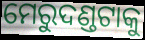
ମେରୁଦଣ୍ଡଟାକୁ